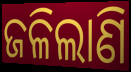
ଜଳିଲାଣି